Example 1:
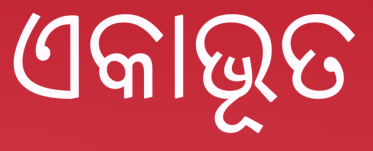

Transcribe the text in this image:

ଏକାଭୂତ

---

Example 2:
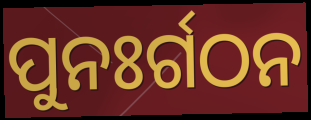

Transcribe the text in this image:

ପୁନଃର୍ଗଠନ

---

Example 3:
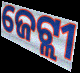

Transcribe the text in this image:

ଜେଟ୍ଲୀ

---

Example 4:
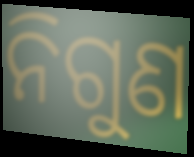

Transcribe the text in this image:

ନିଗୁଣ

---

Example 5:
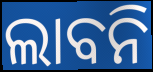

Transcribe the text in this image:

ଲାବନି